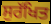
ਸੁਰੱਖਿਤ